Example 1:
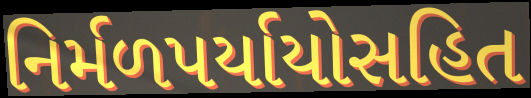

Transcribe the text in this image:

નિર્મળપર્યાયોસહિત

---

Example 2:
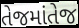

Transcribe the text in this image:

તેજમાંતેજ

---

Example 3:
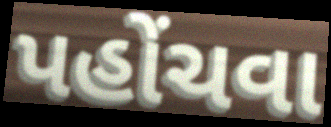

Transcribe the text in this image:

પહોંચવા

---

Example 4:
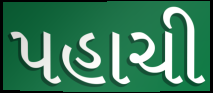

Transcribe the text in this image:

પહાચી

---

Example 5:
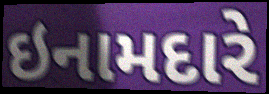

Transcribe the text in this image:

ઇનામદારે